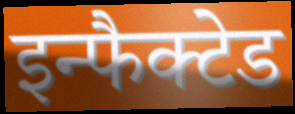
इन्फैक्टेड